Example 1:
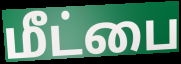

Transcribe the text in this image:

மீட்பை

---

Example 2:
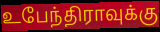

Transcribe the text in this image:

உபேந்திராவுக்கு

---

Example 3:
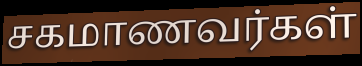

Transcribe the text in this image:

சகமாணவர்கள்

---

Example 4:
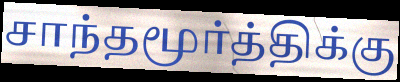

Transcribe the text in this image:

சாந்தமூர்த்திக்கு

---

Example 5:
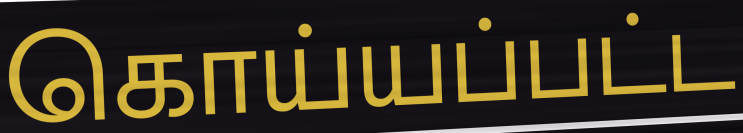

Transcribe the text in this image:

கொய்யப்பட்ட